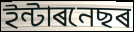
ইন্টাৰনেছৰ